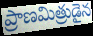
ప్రాణమిత్రుడైన